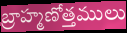
బ్రాహ్మణోత్తములు